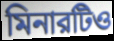
মিনারটিও